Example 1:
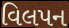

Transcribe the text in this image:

વિલપન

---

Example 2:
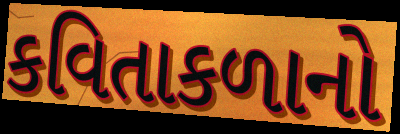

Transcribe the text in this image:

કવિતાકળાનો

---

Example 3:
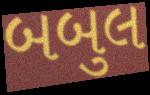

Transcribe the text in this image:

બબુલ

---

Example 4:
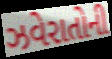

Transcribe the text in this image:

ઝવેરાતોની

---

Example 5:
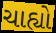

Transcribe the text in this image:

ચાહ્યો